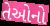
તેઓનો